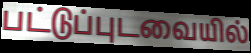
பட்டுப்புடவையில்